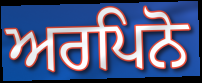
ਅਰਪਿਨੋ